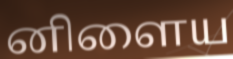
னிளைய